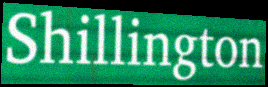
Shillington